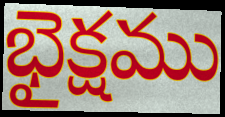
భైక్షము